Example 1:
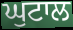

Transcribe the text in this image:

ਘੁਟਾਲ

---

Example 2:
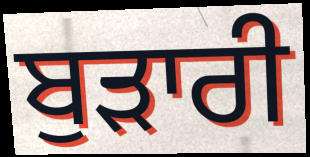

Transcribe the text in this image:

ਬੁੜਾਰੀ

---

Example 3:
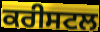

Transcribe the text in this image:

ਕਰੀਸਟਲ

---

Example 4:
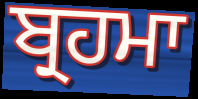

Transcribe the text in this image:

ਬ੍ਰਹਮਾ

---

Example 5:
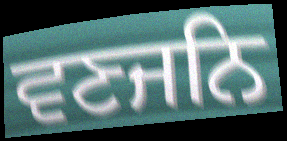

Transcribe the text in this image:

ਵਣਜਨਿ